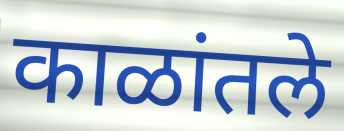
काळांतले